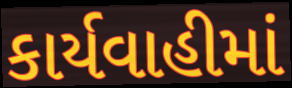
કાર્યવાહીમાં